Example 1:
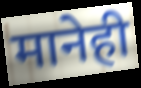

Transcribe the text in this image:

मानेही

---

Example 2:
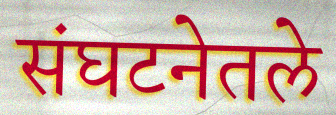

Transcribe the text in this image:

संघटनेतले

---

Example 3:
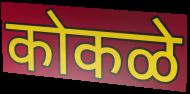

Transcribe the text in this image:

कोकळे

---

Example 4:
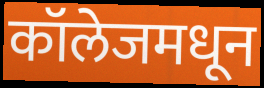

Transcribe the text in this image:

कॉलेजमधून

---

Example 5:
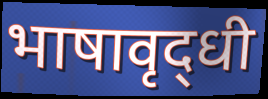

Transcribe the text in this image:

भाषावृद्धी